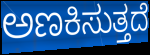
ಅಣಕಿಸುತ್ತದೆ